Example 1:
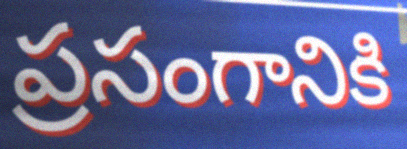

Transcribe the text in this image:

ప్రసంగానికి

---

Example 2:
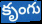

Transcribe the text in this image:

కృంగు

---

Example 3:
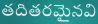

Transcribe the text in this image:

తదితరమైనవి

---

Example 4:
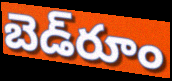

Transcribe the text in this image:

బెడ్‌రూం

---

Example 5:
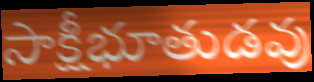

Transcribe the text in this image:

సాక్షీభూతుడవు